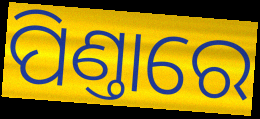
ପିଣ୍ତାରେ